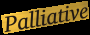
Palliative